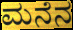
ಮನೆನ